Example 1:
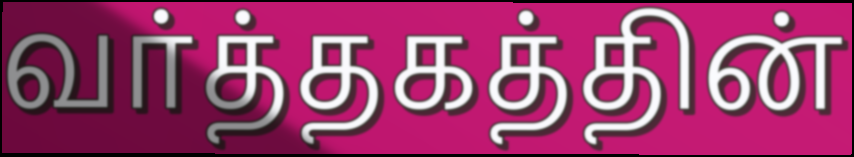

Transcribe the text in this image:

வர்த்தகத்தின்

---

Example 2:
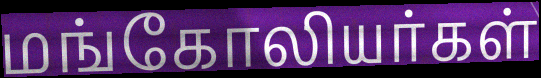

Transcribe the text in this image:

மங்கோலியர்கள்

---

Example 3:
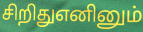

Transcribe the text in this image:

சிறிதுஎனினும்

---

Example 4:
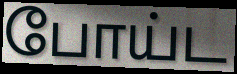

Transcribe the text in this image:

போய்ட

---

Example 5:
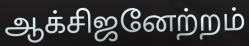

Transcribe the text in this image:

ஆக்சிஜனேற்றம்